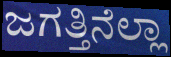
ಜಗತ್ತಿನೆಲ್ಲಾ